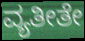
ವ್ಯತೀತೇ